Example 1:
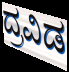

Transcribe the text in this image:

ದ್ರವಿಡ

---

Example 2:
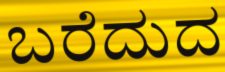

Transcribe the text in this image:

ಬರೆದುದ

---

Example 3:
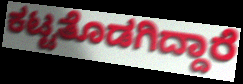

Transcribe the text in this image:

ಕಟ್ಟತೊಡಗಿದ್ದಾರೆ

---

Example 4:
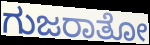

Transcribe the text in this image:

ಗುಜರಾತೋ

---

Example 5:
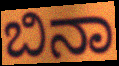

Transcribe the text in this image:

ಬಿನಾ